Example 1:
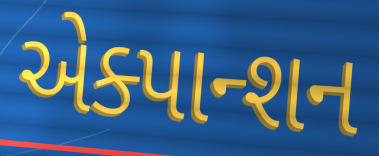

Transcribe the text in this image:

એક્પાન્શન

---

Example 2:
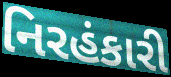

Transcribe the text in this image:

નિરહંકારી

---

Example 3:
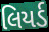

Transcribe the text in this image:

લિયર્ડ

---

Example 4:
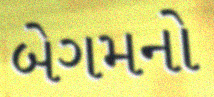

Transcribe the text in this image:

બેગમનો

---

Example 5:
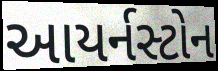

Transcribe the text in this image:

આયર્નસ્ટોન